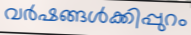
വർഷങ്ങൾക്കിപ്പുറം